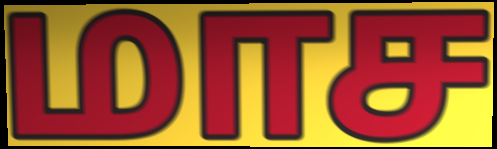
மாச